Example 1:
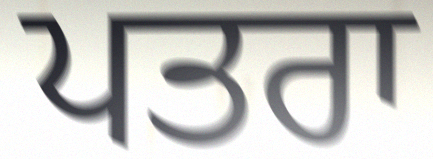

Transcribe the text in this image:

ਪਤਰਾ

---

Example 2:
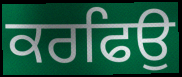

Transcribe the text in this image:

ਕਰਫਿਉ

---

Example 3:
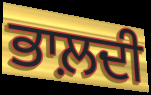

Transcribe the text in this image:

ਭਾਲ਼ਦੀ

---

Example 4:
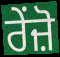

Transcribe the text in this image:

ਰੇਂਜ਼ੋ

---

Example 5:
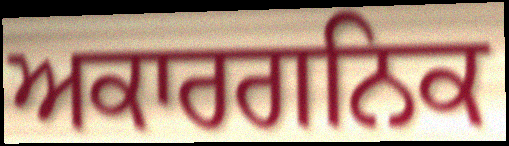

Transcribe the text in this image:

ਅਕਾਰਗਨਿਕ